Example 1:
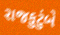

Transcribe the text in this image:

રાજકુટુંબે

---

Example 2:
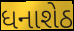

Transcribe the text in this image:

ધનાશેઠ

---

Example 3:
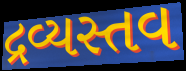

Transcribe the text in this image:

દ્રવ્યસ્તવ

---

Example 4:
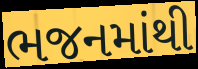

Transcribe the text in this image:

ભજનમાંથી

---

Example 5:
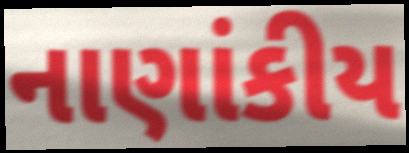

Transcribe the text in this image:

નાણાંકીય